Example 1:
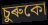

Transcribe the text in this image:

চুৰুকো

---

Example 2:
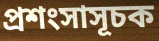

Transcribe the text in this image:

প্ৰশংসাসূচক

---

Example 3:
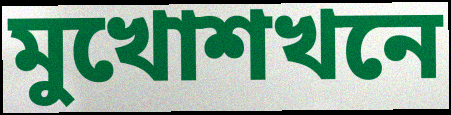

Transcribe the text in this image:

মুখোশখনে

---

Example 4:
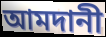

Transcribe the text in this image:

আমদানী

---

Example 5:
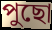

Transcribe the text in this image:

পুছো